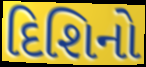
દિશિનો